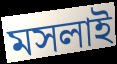
মসলাই